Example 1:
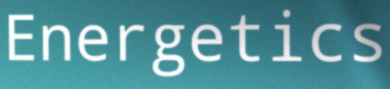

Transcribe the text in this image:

Energetics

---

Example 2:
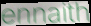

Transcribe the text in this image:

ennaith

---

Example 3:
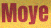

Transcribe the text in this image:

Moye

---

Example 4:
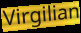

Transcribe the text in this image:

Virgilian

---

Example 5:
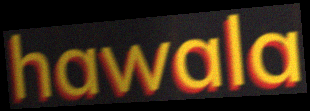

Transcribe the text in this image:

hawala